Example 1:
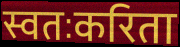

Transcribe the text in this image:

स्वतःकरिता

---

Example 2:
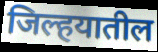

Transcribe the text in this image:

जिल्हयातील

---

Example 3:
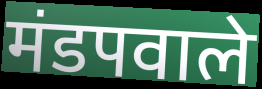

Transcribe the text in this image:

मंडपवाले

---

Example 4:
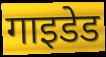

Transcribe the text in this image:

गाइडेड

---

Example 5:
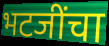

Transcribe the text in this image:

भटजींचा